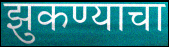
झुकण्याचा